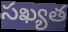
సఖ్యత